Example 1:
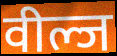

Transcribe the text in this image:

वील्ज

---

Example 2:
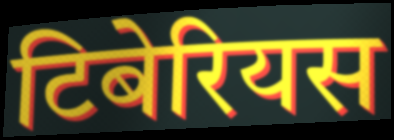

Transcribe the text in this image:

टिबेरियस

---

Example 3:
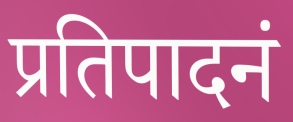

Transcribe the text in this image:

प्रतिपादनं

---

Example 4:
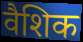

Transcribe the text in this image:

वैशिक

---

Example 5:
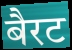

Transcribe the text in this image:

बैरट